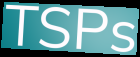
TSPs